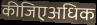
कीजिएअधिक